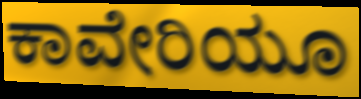
ಕಾವೇರಿಯೂ